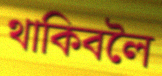
থাকিবলৈ